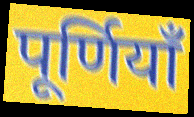
पूर्णियाँ